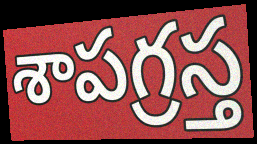
శాపగ్రస్త